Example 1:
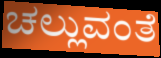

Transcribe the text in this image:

ಚಲ್ಲುವಂತೆ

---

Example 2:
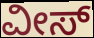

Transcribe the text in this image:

ವೀಸ್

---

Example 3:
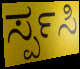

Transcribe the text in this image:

ರ್ಸ್ಪಸಿ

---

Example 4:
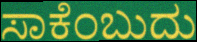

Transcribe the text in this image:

ಸಾಕೆಂಬುದು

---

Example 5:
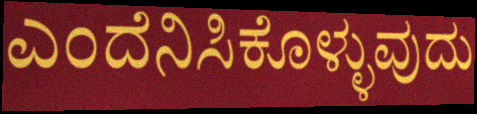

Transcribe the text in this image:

ಎಂದೆನಿಸಿಕೊಳ್ಳುವುದು